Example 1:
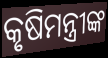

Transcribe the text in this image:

କୃଷିମନ୍ତ୍ରୀଙ୍କ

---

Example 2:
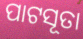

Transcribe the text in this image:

ପାଟସୂତା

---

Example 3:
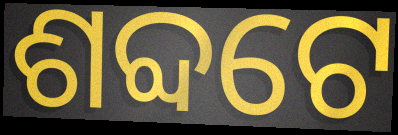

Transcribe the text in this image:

ଶବ୍ଦଟେ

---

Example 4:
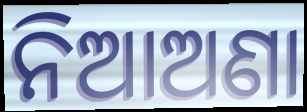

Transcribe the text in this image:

ନିଆଅଣା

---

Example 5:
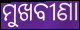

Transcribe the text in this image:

ମୁଖବୀଣା